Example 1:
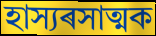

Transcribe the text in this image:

হাস্যৰসাত্মক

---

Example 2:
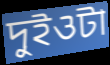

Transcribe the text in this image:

দুইওটা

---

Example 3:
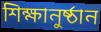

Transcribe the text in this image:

শিক্ষানুষ্ঠান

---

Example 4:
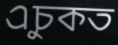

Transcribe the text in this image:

এচুকত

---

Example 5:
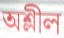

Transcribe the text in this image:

অশ্লীল